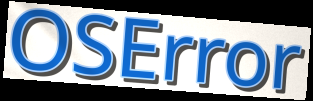
OSError